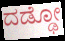
ದಡ್ಢೋ